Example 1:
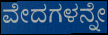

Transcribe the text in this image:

ವೇದಗಳನ್ನೇ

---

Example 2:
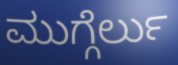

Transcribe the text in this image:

ಮುಗ್ಗೆರ್ಲು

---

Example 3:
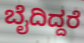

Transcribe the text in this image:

ಬೈದಿದ್ದರೆ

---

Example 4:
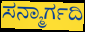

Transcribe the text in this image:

ಸನ್ಮಾರ್ಗದಿ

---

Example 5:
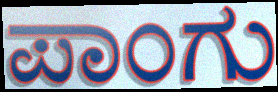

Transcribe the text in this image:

ಪಾಂಗು